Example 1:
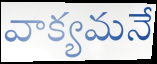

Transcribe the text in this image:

వాక్యమనే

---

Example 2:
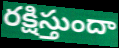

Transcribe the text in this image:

రక్షిస్తుందా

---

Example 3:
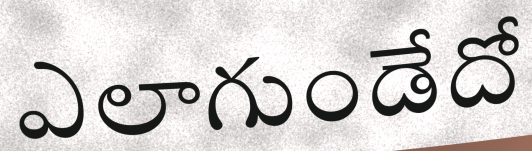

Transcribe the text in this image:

ఎలాగుండేదో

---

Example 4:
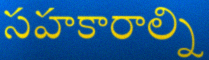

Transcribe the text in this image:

సహకారాల్ని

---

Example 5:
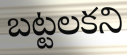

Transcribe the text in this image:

బట్టలకని